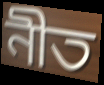
নীত